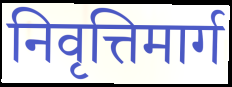
निवृत्तिमार्ग